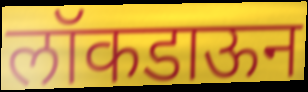
लॉकडाऊन